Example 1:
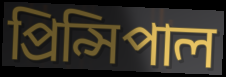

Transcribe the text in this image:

প্রিন্সিপাল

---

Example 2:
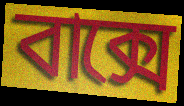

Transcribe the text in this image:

বাক্সে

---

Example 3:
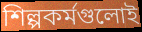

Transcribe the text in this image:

শিল্পকর্মগুলোই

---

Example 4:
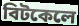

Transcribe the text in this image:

বিটকেলে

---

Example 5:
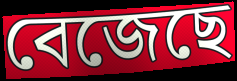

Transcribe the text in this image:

বেজেছে